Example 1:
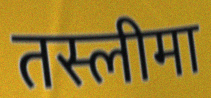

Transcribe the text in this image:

तस्लीमा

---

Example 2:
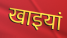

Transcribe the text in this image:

खाइयां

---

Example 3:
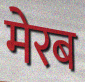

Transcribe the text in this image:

मेरब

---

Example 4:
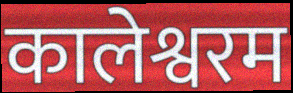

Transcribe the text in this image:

कालेश्वरम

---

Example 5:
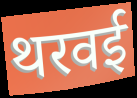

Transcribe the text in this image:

थरवई